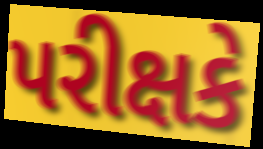
પરીક્ષકે